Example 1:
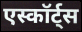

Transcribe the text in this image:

एस्कॉर्ट्स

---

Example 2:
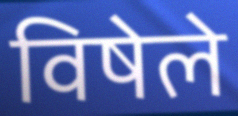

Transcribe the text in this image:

विषेले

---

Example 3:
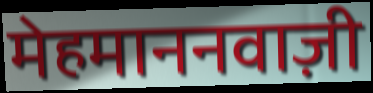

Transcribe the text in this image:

मेहमाननवाज़ी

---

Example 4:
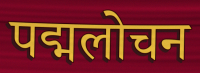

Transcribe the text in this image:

पद्मलोचन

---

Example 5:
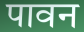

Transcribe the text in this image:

पावन